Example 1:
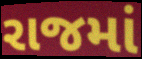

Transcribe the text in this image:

રાજમાં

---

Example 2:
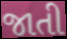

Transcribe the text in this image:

જાતી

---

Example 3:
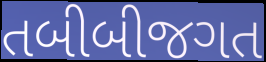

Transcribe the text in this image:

તબીબીજગત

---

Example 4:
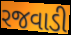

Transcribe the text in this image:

રજવાડી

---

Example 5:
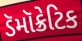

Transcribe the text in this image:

ડૅમૉક્રેટિક